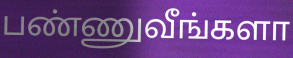
பண்ணுவீங்களா